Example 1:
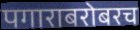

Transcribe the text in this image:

पगाराबरोबरच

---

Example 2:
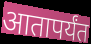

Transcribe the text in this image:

आतापर्यंत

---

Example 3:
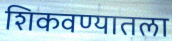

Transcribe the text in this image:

शिकवण्यातला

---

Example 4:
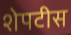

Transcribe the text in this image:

शेपटीस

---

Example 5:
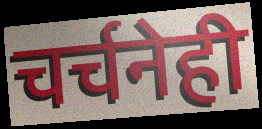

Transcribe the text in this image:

चर्चनेही